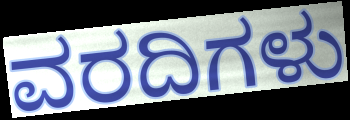
ವರದಿಗಳು